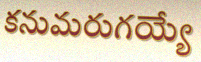
కనుమరుగయ్యే